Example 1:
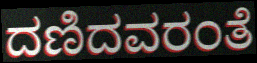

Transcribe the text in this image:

ದಣಿದವರಂತೆ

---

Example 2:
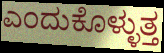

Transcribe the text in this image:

ಎಂದುಕೊಳ್ಳುತ್ತ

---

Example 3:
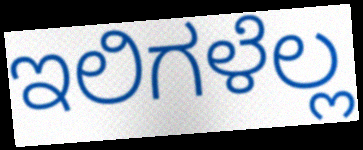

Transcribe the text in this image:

ಇಲಿಗಳೆಲ್ಲ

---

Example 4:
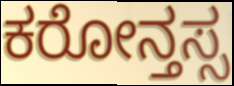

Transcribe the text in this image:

ಕರೋನ್ತಸ್ಸ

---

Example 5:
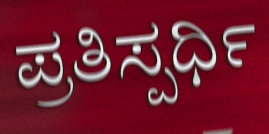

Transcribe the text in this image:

ಪ್ರತಿಸ್ಪರ್ಧಿ